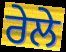
ਰੇਲੇ